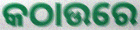
କଠାଉରେ